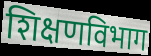
शिक्षणविभाग